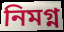
নিমগ্ন